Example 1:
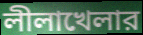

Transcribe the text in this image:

লীলাখেলার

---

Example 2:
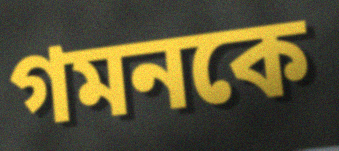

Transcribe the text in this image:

গমনকে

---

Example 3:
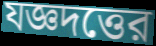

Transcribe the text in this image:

যজ্ঞদত্তের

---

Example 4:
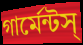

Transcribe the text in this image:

গার্মেন্টস্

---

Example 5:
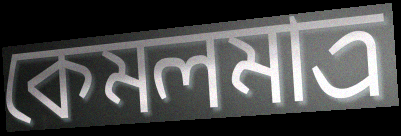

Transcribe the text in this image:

কেমলমাত্র